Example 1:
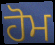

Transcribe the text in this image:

ਹੋਮ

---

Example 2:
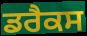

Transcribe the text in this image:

ਡਰੈਕਸ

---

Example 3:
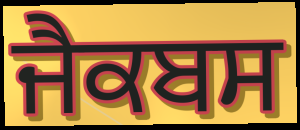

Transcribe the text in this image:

ਜੈਕਬਸ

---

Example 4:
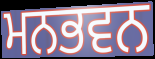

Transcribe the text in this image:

ਮਨਭਵਨ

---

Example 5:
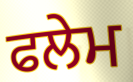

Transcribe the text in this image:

ਫਲੇਮ